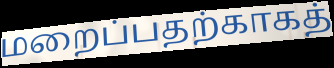
மறைப்பதற்காகத்